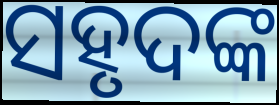
ସହୃଦଙ୍କ